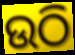
ଉଠି